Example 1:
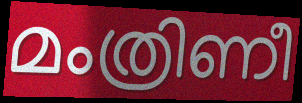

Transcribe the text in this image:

മംത്രിണീ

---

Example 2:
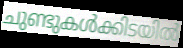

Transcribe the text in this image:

ചുണ്ടുകൾക്കിടയിൽ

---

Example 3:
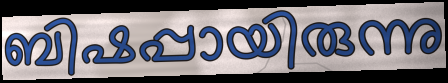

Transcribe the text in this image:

ബിഷപ്പായിരുന്നു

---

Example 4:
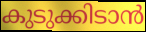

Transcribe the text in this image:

കുടുക്കിടാൻ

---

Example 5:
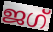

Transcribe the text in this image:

ജഗ്